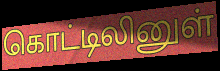
கொட்டிலினுள்